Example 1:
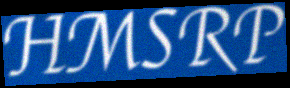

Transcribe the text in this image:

HMSRP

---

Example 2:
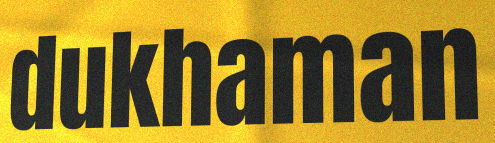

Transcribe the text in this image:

dukhaman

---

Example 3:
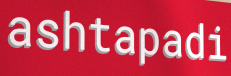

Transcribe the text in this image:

ashtapadi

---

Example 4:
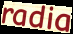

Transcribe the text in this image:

radia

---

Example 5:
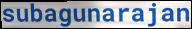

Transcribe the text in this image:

subagunarajan